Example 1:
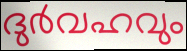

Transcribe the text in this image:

ദുർവഹവും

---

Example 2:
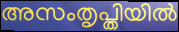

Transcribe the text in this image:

അസംതൃപ്തിയിൽ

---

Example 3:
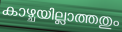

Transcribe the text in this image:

കാഴ്ചയില്ലാത്തതും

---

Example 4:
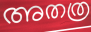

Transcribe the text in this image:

അതത്ര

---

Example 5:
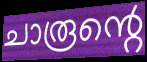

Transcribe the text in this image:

ചാരൂന്റെ